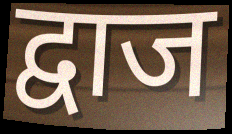
द्वाज